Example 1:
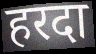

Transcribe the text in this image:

हरदा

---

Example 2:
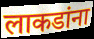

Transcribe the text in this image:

लाकडांना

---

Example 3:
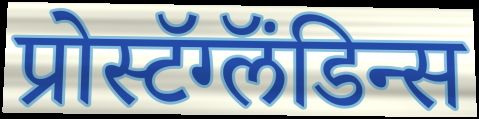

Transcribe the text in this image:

प्रोस्टॅग्लॅंडिन्स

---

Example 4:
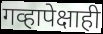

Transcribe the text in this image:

गव्हापेक्षाही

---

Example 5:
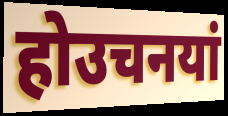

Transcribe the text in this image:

होउचनयां